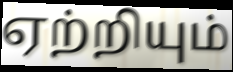
ஏற்றியும்